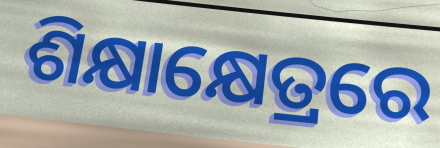
ଶିକ୍ଷାକ୍ଷେତ୍ରରେ